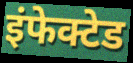
इंफेक्टेड